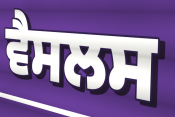
ਵੈਸਲਸ